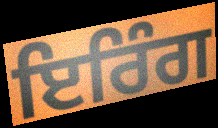
ਇਰਿੰਗ